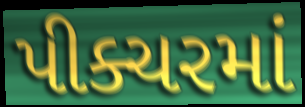
પીક્ચરમાં